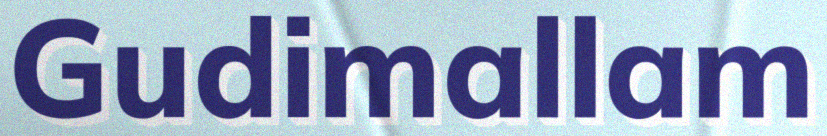
Gudimallam